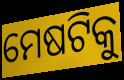
ମେଷଟିକୁ